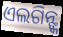
ଏଲଗିନ୍ଙ୍କ